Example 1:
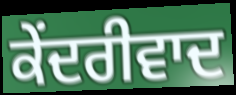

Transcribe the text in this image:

ਕੇਂਦਰੀਵਾਦ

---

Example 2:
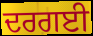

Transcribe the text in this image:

ਦਰਗਈ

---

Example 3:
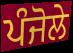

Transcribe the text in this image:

ਪੰਜੋਲੇ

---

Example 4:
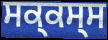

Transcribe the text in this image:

ਸਕ੍ਕਸ੍ਸ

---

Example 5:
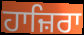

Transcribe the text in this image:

ਹਾਜ਼ਿਰਾ